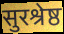
सुरश्रेष्ठ